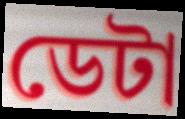
ডেটা